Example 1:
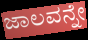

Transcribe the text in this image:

ಜಾಲವನ್ನೇ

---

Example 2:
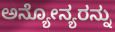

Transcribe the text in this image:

ಅನ್ಯೋನ್ಯರನ್ನು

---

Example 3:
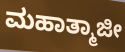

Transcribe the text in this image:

ಮಹಾತ್ಮಾಜೀ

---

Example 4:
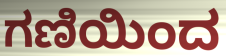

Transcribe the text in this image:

ಗಣಿಯಿಂದ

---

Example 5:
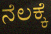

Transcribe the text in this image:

ನೆಲಕ್ಕೆ